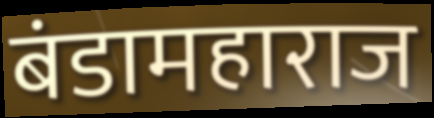
बंडामहाराज